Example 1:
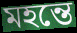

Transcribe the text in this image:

মহন্তে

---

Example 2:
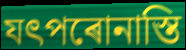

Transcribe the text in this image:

যৎপৰোনাস্তি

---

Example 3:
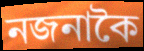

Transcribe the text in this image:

নজনাকৈ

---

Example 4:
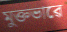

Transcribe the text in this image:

মুক্তভাৱে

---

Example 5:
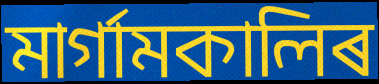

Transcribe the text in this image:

মাৰ্গামকালিৰ